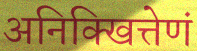
अनिक्खित्तेणं